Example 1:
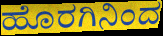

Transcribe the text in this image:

ಹೊರಗಿನಿಂದ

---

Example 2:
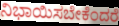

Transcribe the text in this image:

ನಿಭಾಯಿಸಬೇಕೆಂದರೆ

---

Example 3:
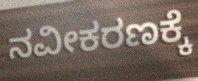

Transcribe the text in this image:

ನವೀಕರಣಕ್ಕೆ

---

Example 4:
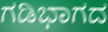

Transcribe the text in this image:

ಗಡಿಭಾಗದ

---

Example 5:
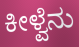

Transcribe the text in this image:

ಕೀಳ್ವೆನು